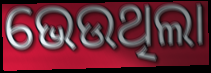
ଭେଉଥିଲା